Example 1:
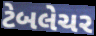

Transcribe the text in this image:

ટેબલેચર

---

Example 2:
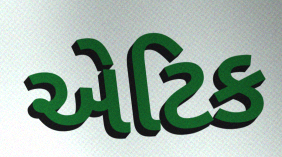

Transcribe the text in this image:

એટિક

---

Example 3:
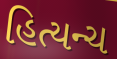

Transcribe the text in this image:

હિત્યન્ચ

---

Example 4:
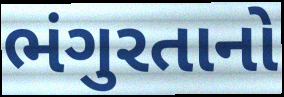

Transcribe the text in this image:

ભંગુરતાનો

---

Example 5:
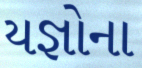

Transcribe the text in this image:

યજ્ઞોના